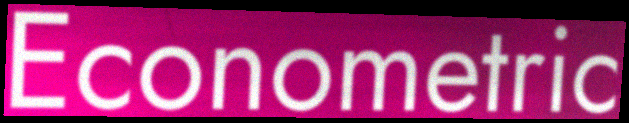
Econometric